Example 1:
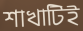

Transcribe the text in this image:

শাখাটিই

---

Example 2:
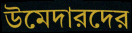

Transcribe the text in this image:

উমেদারদের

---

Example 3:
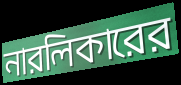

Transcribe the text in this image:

নারলিকারের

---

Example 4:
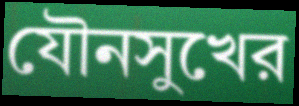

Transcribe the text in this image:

যৌনসুখের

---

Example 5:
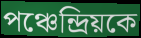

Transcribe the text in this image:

পঞ্চেন্দ্রিয়কে